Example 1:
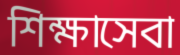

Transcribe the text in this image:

শিক্ষাসেবা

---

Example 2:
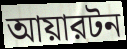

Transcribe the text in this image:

আয়ারটন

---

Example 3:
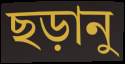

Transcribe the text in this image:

ছড়ানু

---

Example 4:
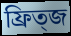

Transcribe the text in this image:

ফ্রিত্জ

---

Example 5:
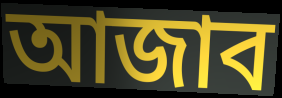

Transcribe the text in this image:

আজাব